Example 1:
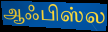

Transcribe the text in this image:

ஆஃபிஸ்ல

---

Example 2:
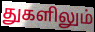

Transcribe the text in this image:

துகளிலும்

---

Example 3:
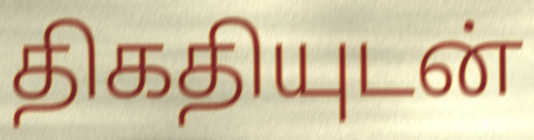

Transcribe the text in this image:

திகதியுடன்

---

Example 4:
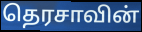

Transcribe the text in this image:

தெரசாவின்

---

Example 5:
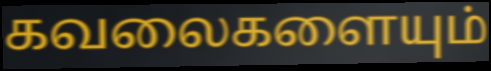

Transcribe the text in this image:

கவலைகளையும்